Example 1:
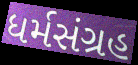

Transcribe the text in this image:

ધર્મસંગ્રહ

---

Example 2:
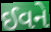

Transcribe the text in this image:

ઈવને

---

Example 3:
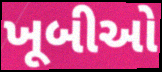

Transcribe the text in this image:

ખૂબીઓ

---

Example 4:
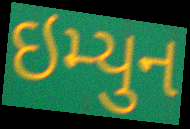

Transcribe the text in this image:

ઇમ્યુન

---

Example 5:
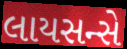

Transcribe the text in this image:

લાયસન્સે